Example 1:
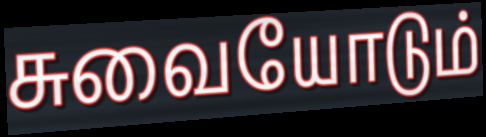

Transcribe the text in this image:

சுவையோடும்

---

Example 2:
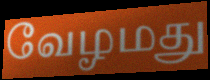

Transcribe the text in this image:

வேழமது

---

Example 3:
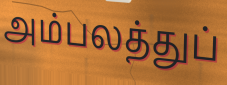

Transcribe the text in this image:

அம்பலத்துப்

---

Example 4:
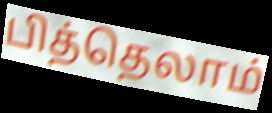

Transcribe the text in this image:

பித்தெலாம்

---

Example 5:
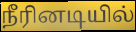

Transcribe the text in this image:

நீரினடியில்